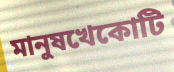
মানুষখেকোটি